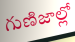
గుణిజాల్లో